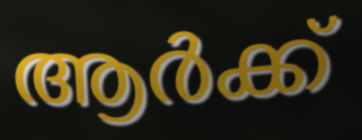
ആർക്ക്